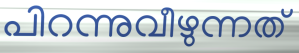
പിറന്നുവീഴുന്നത്